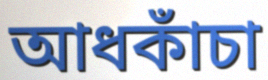
আধকাঁচা